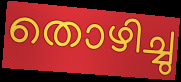
തൊഴിച്ചു